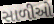
સાળીઓ